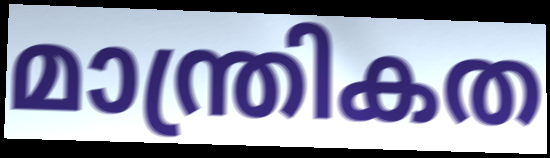
മാന്ത്രികത